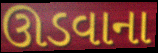
ઊડવાના